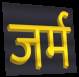
जर्म